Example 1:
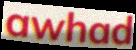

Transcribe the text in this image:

awhad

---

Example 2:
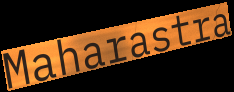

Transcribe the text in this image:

Maharastra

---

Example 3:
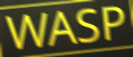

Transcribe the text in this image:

WASP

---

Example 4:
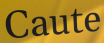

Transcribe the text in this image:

Caute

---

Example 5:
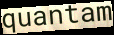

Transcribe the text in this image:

quantam